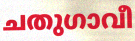
ചതുഗാവീ